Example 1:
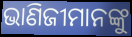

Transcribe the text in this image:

ଭାଣିଜୀମାନଙ୍କୁ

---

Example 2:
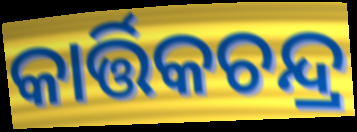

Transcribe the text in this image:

କାର୍ତ୍ତିକଚନ୍ଦ୍ର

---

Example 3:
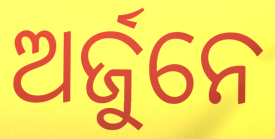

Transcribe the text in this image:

ଅର୍ଜୁନେ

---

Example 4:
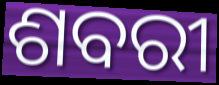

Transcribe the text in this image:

ଶବରୀ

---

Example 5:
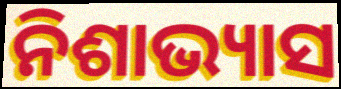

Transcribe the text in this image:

ନିଶାଭ୍ୟାସ